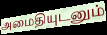
அமைதியுடனும்